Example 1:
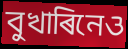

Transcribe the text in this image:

বুখাৰিনেও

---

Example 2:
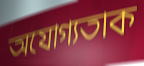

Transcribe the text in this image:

অযোগ্যতাক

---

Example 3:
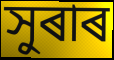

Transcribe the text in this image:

সুৰাৰ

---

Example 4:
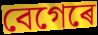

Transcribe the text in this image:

বেগেৰে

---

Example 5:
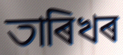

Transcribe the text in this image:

তাৰিখৰ